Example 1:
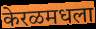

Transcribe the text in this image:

केरळमधला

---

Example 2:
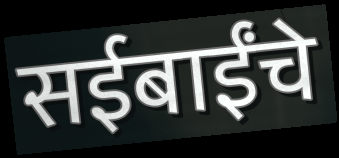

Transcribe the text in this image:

सईबाईंचे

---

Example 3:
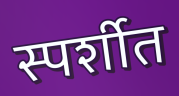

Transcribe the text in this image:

स्पर्शीत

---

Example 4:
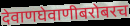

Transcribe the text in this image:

देवाणघेवाणीबरोबरच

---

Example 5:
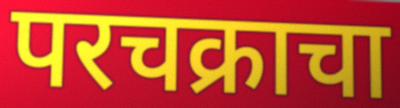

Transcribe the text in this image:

परचक्राचा